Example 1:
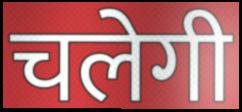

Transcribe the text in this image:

चलेगी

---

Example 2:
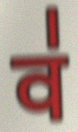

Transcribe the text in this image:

व॑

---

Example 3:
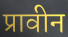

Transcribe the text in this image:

प्रावीन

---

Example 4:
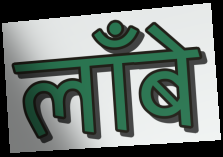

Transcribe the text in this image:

लाँबे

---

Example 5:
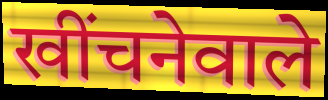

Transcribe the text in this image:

खींचनेवाले